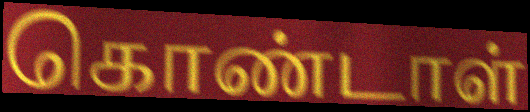
கொண்டாள்